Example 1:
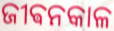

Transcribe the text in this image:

ଜୀଵନକାଳ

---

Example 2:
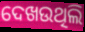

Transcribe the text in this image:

ଦେଖଉଥିଲି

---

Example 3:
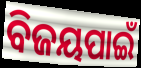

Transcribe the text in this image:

ବିଜୟପାଇଁ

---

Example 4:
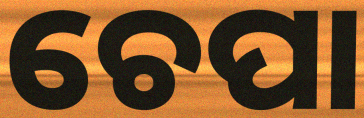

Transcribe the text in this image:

ଚେପା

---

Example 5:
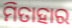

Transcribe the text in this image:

ମିତାହାର